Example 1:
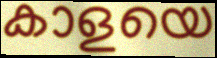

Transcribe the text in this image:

കാളയെ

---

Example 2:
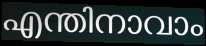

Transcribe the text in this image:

എന്തിനാവാം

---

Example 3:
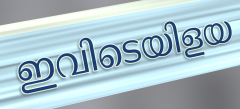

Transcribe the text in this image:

ഇവിടെയിളയ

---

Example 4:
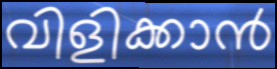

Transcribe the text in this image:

വിളിക്കാൻ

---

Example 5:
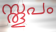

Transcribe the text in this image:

സ്തൂപം